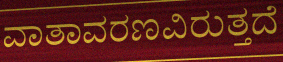
ವಾತಾವರಣವಿರುತ್ತದೆ